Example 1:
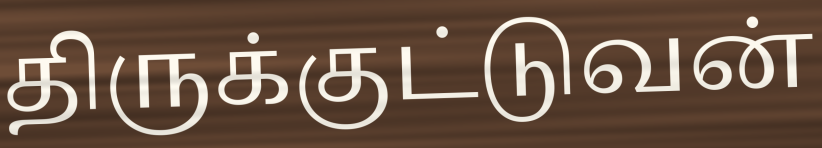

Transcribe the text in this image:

திருக்குட்டுவன்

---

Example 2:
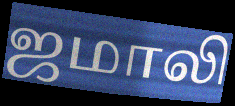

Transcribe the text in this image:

ஜமாலி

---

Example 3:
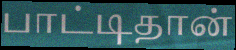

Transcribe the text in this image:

பாட்டிதான்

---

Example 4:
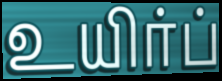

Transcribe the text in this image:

உயிர்ப்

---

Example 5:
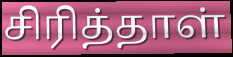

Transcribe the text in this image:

சிரித்தாள்